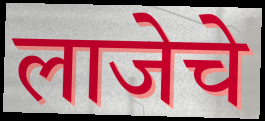
लाजेचे